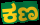
ಕಣ